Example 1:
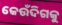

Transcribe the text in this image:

କେଉଁଦିଗକୁ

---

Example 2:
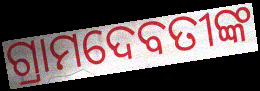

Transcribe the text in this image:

ଗ୍ରାମଦେବତୀଙ୍କ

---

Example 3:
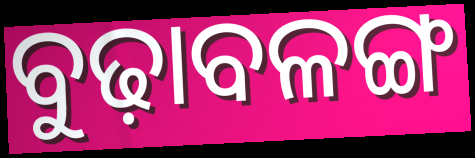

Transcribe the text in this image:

ବୁଢ଼ାବଳଙ୍ଗ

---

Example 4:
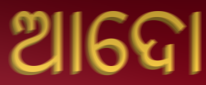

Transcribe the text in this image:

ଆଦୋ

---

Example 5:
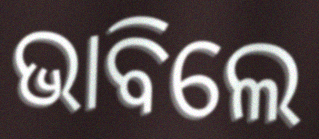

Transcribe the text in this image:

ଭାବିଲେ